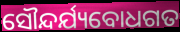
ସୌନ୍ଦର୍ଯ୍ୟବୋଧଗତ